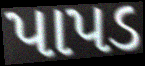
પાપડ